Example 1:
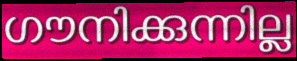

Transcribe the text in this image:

ഗൗനിക്കുന്നില്ല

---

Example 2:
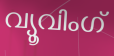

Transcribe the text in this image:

വ്യൂവിംഗ്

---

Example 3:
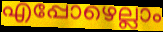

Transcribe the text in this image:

എപ്പോഴെല്ലാം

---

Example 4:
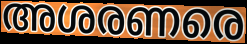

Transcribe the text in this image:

അശരണരെ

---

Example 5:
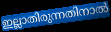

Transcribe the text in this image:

ഇല്ലാതിരുന്നതിനാൽ